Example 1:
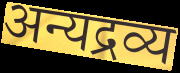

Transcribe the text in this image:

अन्यद्रव्य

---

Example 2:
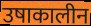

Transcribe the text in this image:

उषाकालीन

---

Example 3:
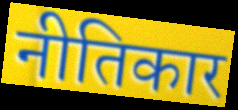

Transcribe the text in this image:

नीतिकार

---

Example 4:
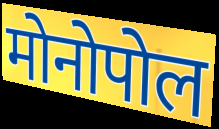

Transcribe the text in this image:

मोनोपोल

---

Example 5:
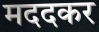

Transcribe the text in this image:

मददकर